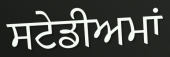
ਸਟੇਡੀਅਮਾਂ